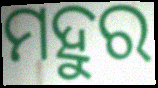
ମହୁର